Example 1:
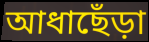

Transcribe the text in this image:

আধাছেঁড়া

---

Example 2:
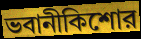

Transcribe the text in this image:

ভবানীকিশোর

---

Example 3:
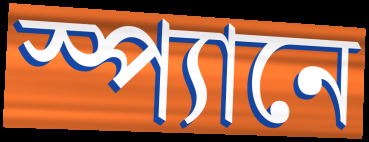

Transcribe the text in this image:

স্প্যানে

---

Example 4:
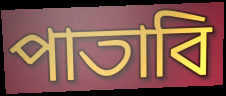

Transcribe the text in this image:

পাতাবি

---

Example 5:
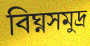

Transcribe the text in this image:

বিঘ্নসমুদ্র